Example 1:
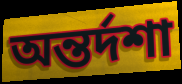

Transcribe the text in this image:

অন্তর্দশা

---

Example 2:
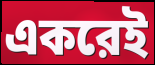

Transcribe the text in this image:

একরেই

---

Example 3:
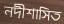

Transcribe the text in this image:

নদীশাসিত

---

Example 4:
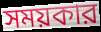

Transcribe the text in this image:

সময়কার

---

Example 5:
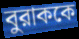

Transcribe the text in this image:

বুরাককে